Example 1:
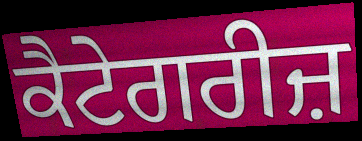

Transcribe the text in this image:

ਕੈਟੇਗਰੀਜ਼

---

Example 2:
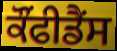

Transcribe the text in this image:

ਕੌਂਫੀਡੈਂਸ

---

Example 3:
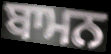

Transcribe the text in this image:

ਬਾਮਨ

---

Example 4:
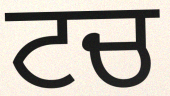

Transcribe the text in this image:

ਟਚ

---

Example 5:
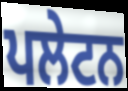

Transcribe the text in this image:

ਪਲੇਟਨ